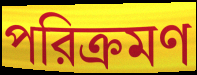
পরিক্রমণ